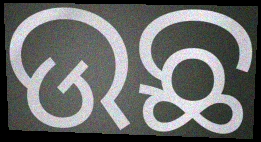
ଉଛ